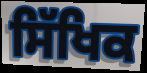
ਸਿੱਖਿਕ